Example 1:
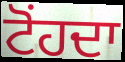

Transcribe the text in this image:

ਟੋਂਹਦਾ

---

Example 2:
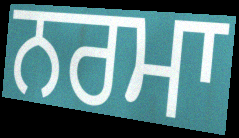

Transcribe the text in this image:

ਨਰਮਾ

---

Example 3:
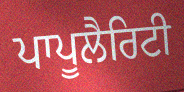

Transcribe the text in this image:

ਪਾਪੂਲੈਰਿਟੀ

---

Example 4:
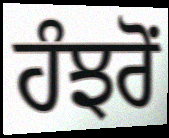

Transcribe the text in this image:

ਹੰਝਰੋਂ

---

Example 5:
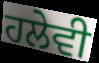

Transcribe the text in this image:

ਹਲੇਵੀ